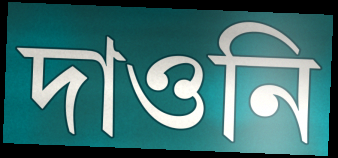
দাওনি